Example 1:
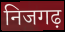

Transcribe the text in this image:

निजगढ़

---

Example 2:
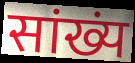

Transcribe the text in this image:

सांख्यं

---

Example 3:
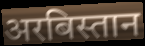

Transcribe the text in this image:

अरबिस्तान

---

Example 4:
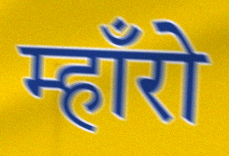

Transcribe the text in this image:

म्हाँरो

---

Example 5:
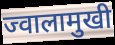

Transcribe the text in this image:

ज्वालामुखी